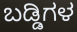
ಬಡ್ಡಿಗಳ